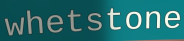
whetstone